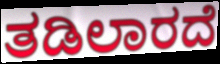
ತಡಿಲಾರದೆ